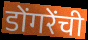
डोंगरेंची